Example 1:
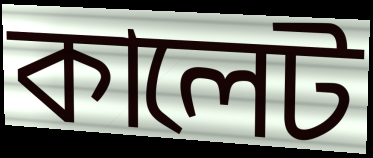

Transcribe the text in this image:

কালেট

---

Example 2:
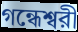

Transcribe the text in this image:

গন্ধেশ্বরী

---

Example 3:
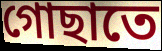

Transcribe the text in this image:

গোছাতে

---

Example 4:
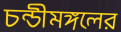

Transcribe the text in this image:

চন্ডীমঙ্গলের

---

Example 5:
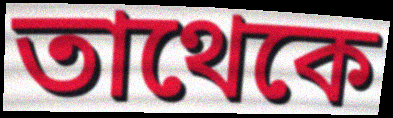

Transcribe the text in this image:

তাথেকে